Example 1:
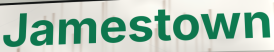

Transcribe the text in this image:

Jamestown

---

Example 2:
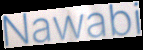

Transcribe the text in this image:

Nawabi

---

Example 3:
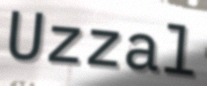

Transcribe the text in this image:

Uzzal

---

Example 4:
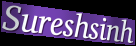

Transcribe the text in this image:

Sureshsinh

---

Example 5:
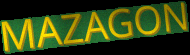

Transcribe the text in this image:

MAZAGON